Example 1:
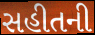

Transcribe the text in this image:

સહીતની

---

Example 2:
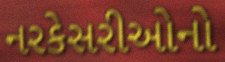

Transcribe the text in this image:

નરકેસરીઓનો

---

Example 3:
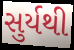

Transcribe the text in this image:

સુર્યથી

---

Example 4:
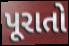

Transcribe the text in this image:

પૂરાતો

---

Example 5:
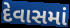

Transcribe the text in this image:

દેવાસમાં